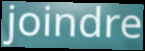
joindre